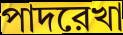
পাদরেখা